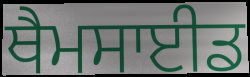
ਥੈਮਸਾਈਡ